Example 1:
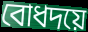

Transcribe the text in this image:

বোধদয়ে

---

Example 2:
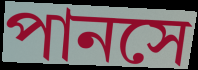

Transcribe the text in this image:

পানসে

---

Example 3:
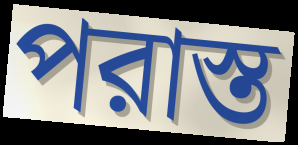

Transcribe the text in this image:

পরাস্ত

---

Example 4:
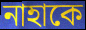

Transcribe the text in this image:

নাহাকে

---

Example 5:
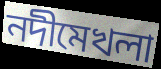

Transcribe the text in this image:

নদীমেখলা